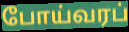
போய்வரப்